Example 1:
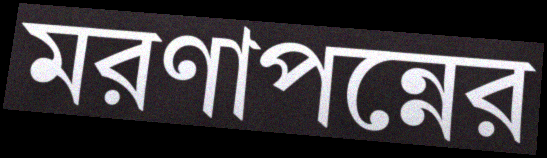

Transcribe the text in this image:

মরণাপন্নের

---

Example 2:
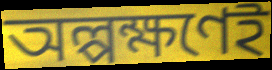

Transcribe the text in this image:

অল্পক্ষণেই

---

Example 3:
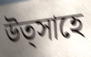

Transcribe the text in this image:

উত্সাহে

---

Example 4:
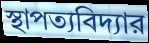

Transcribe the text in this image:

স্থাপত্যবিদ্যার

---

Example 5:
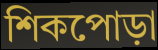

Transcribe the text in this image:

শিকপোড়া